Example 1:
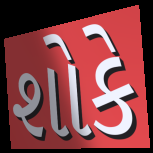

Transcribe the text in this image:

શોકે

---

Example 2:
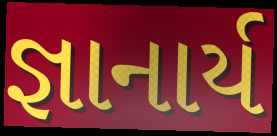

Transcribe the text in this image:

જ્ઞાનાર્ય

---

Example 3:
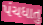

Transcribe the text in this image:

પંચધાતુ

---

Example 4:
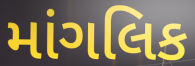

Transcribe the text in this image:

માંગલિક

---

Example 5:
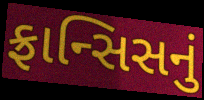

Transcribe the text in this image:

ફ્રાન્સિસનું